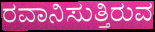
ರವಾನಿಸುತ್ತಿರುವ